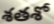
శతశో